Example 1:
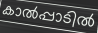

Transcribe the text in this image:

കാൽപ്പാടിൽ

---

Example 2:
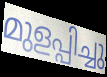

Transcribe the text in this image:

മുളപ്പിച്ചു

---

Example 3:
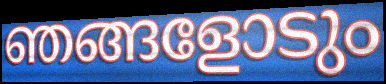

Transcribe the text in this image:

ഞങ്ങളോടും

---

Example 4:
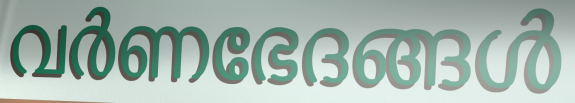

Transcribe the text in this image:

വർണഭേദങ്ങൾ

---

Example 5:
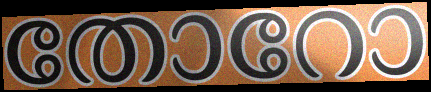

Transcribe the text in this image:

തോറോ